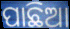
ପାଛିଆ